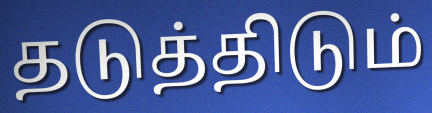
தடுத்திடும்